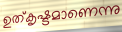
ഉത്കൃഷ്ടമാണെന്നു